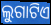
ଲୁଗାଟିଏ